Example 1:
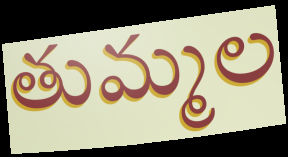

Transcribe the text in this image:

తుమ్మల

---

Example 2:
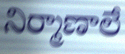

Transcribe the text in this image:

నిర్మాణాలే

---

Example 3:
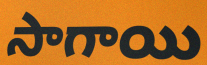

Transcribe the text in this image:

సాగాయి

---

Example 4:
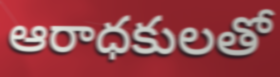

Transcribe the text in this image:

ఆరాధకులతో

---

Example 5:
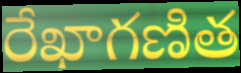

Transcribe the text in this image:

రేఖాగణిత